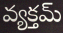
వ్యక్తమ్